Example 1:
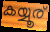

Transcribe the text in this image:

കയ്യൂര്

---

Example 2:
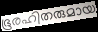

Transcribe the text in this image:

ഭൂരഹിതരുമായ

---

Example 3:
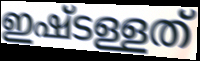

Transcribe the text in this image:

ഇഷ്ടള്ളത്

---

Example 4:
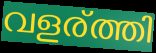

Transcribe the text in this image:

വളര്ത്തി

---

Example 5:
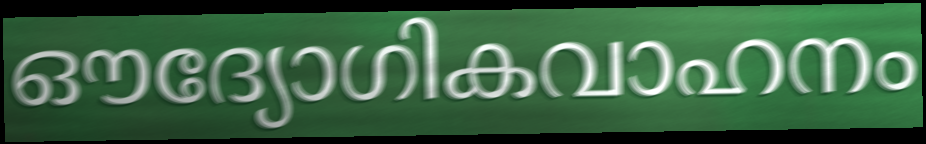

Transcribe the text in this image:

ഔദ്യോഗികവാഹനം